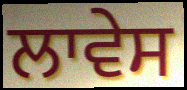
ਲਾਵੇਸ